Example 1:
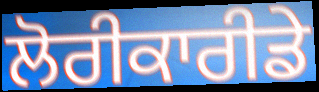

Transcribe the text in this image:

ਲੋਰੀਕਾਰੀਡੇ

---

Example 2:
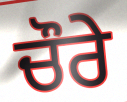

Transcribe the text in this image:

ਚੌਰੇ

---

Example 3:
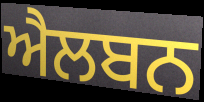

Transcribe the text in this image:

ਐਲਬਨ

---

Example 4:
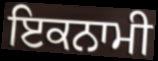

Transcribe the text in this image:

ਇਕਨਾਮੀ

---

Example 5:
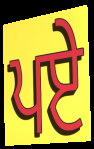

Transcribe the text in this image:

ਪਏ